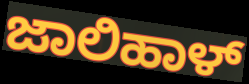
ಜಾಲಿಹಾಳ್